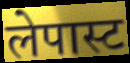
लेपास्ट